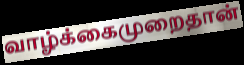
வாழ்க்கைமுறைதான்